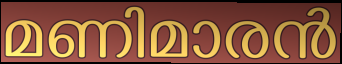
മണിമാരൻ